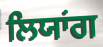
ਲਿਯਾਂਗ